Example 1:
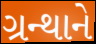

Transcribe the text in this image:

ગ્રન્થાને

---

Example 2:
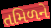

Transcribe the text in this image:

તમિળને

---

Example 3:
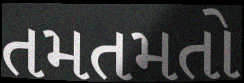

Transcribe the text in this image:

તમતમતો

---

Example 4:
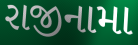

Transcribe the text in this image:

રાજીનામા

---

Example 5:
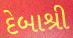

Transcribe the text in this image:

દેબાશ્રી